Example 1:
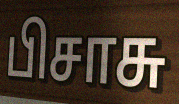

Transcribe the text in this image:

பிசாசு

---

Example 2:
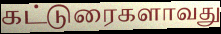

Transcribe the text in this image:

கட்டுரைகளாவது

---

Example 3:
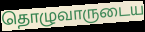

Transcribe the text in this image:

தொழுவாருடைய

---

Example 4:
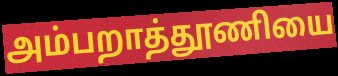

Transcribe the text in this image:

அம்பறாத்தூணியை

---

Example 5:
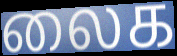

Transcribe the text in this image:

லைக